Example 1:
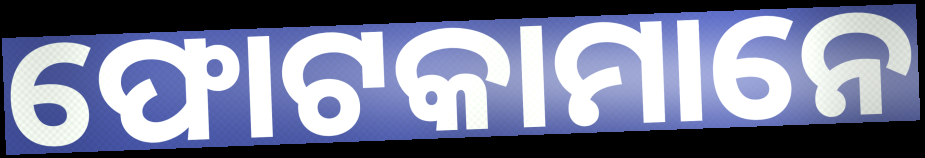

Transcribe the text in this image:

ଫୋଟକାମାନେ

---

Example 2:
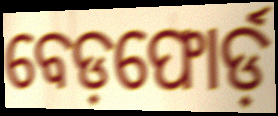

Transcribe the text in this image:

ବେଡ଼ଫୋର୍ଡ଼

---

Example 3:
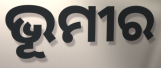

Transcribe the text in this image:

ଭୂମୀର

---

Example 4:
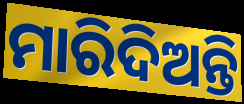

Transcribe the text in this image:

ମାରିଦିଅନ୍ତି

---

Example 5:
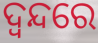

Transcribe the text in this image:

ଦ୍ଵନ୍ଦରେ